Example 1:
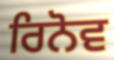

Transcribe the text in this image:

ਰਿਨੋਵ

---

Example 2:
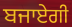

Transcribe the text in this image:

ਬਜਾਏਗੀ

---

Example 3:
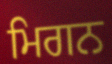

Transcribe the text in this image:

ਮਿਗਨ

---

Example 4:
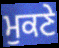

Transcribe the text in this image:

ਮੁਕਣੇ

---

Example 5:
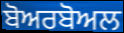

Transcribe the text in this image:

ਬੋਅਰਬੋਅਲ